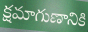
క్షమాగుణానికి